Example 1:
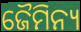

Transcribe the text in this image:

ଜୈମିନ୍ୟ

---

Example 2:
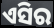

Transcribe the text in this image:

ଏସିର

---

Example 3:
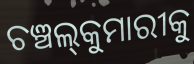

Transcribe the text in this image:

ଚଞ୍ଚଲ୍‍କୁମାରୀକୁ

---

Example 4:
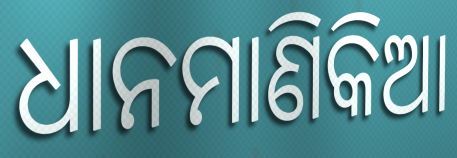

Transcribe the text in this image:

ଧାନମାଣିକିଆ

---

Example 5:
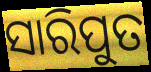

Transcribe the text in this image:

ସାରିପୁତ